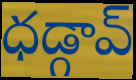
ధడ్గావ్